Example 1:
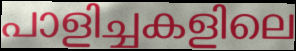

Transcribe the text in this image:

പാളിച്ചകളിലെ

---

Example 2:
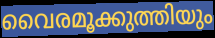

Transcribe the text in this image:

വൈരമൂക്കുത്തിയും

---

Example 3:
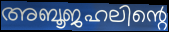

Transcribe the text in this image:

അബൂജഹലിന്റെ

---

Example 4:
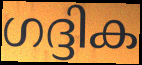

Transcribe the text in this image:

ഗദ്ദിക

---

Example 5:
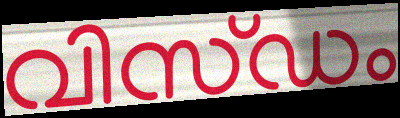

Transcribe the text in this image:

വിസ്ഡം